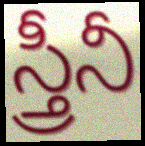
స్త్రీనీ